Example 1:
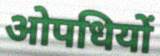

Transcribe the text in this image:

ओपधियों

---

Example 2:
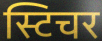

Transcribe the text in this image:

स्टिचर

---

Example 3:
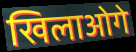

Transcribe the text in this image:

खिलाओगे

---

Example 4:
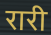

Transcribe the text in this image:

रारी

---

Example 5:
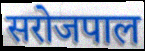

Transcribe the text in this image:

सरोजपाल